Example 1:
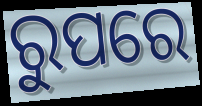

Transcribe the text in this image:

ରୁପରେ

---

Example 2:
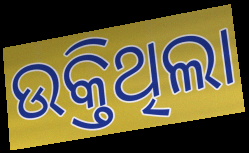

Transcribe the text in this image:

ଉକ୍ତିଥିଲା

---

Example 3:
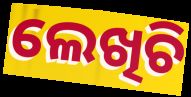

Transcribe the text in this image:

ଲେଖିଚି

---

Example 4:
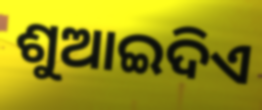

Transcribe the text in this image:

ଶୁଆଇଦିଏ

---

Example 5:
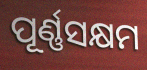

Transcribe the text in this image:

ପୂର୍ଣ୍ଣସକ୍ଷମ